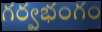
గర్వభంగం